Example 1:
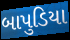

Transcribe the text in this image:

બાપુડિયા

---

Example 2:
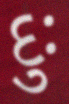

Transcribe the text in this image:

દુઃ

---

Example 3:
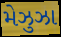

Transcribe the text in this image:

મેઝુઝા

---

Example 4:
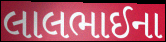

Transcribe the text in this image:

લાલભાઈના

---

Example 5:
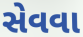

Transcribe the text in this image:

સેવવા